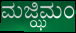
ಮಜ್ಝಿಮಂ